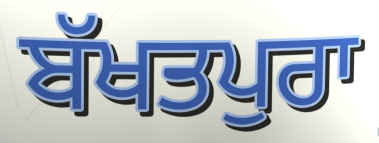
ਬੱਖਤਪੁਰਾ